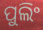
ପୁଲିଂ